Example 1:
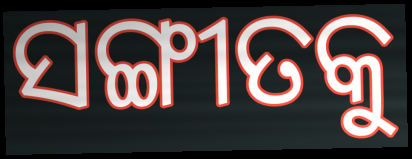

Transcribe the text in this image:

ସଙ୍ଗୀତକୁ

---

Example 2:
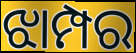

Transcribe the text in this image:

ଝାମ୍ପର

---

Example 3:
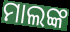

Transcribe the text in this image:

ମାଲଙ୍କ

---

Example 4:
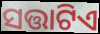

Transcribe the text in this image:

ସତ୍ତାଟିଏ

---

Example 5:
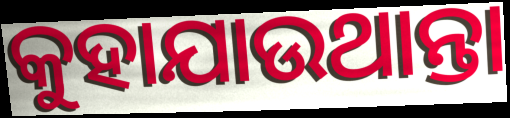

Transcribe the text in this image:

କୁହାଯାଉଥାନ୍ତା